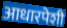
आधारपेशी